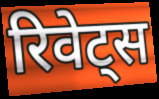
रिवेट्स